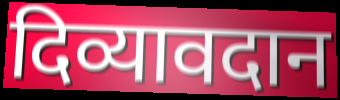
दिव्यावदान